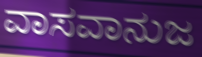
ವಾಸವಾನುಜ